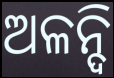
ଅଳନ୍ଦି